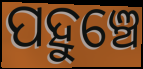
ପହୁଞ୍ଚେ